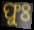
ଫୁଃ